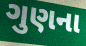
ગુણના